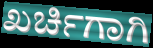
ಖರ್ಚಿಗಾಗಿ